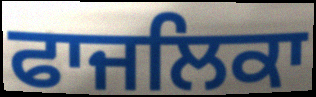
ਫਾਜਲਿਕਾ